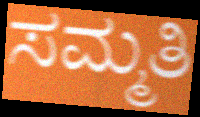
ಸಮ್ಮತಿ